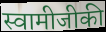
स्वामीजीकी